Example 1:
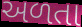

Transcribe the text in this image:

અળતા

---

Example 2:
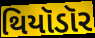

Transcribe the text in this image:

થિયૉડૉર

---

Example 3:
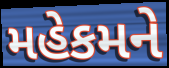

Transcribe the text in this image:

મહેકમને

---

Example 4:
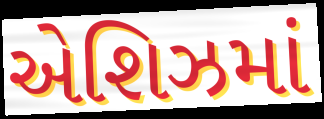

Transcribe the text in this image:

એશિઝમાં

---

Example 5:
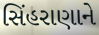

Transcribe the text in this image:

સિંહરાણાને